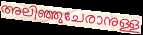
അലിഞ്ഞുചേരാനുള്ള